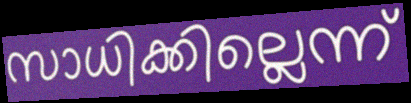
സാധിക്കില്ലെന്ന്